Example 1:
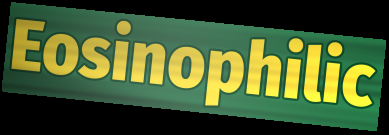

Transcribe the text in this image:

Eosinophilic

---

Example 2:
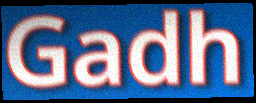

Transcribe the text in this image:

Gadh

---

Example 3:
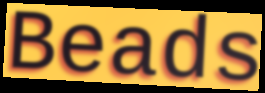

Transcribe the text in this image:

Beads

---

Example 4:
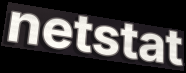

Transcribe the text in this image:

netstat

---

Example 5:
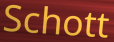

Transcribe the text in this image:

Schott